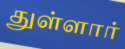
துள்ளார்